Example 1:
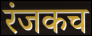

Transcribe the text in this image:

रंजकच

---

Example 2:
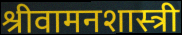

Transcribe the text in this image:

श्रीवामनशास्त्री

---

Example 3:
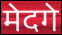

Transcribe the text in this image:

मेदगे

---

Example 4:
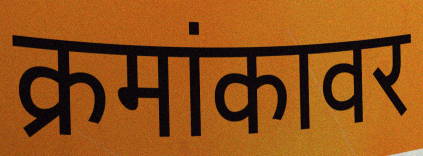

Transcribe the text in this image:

क्रमांकावर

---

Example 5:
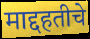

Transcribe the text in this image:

माद्दहतीचे